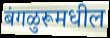
बंगळुरूमधील